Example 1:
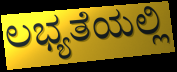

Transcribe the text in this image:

ಲಭ್ಯತೆಯಲ್ಲಿ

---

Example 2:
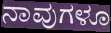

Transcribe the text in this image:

ನಾವುಗಳೂ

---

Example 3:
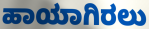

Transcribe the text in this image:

ಹಾಯಾಗಿರಲು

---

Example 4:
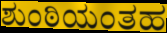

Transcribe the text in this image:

ಶುಂಠಿಯಂತಹ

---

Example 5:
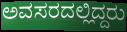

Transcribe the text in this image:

ಅವಸರದಲ್ಲಿದ್ದರು